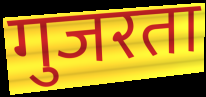
गुजरता